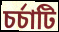
চর্চাটি